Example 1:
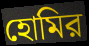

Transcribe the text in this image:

হোমির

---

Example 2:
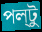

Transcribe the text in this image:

পল্‌টু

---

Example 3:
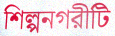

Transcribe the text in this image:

শিল্পনগরীটি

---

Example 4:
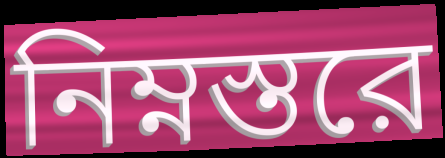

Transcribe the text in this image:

নিম্নস্তরে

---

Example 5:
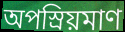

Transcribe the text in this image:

অপস্রিয়মাণ